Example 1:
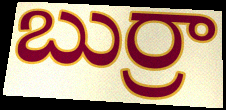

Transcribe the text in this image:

బుర్రా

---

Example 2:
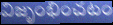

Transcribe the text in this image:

విజృంభించటం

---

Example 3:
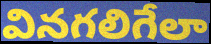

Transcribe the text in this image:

వినగలిగేలా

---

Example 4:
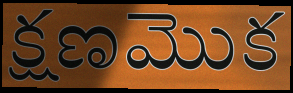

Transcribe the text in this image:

క్షణమొక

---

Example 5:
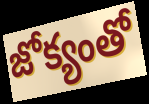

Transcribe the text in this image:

జోక్యంతో